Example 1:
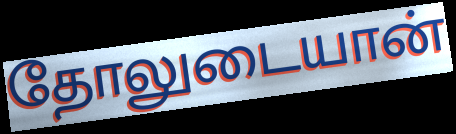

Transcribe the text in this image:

தோலுடையான்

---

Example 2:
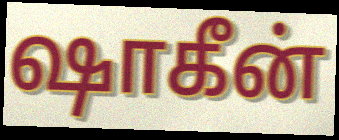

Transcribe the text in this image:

ஷாகீன்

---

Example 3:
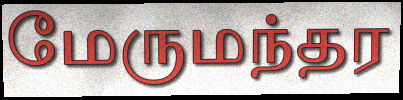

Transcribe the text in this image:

மேருமந்தர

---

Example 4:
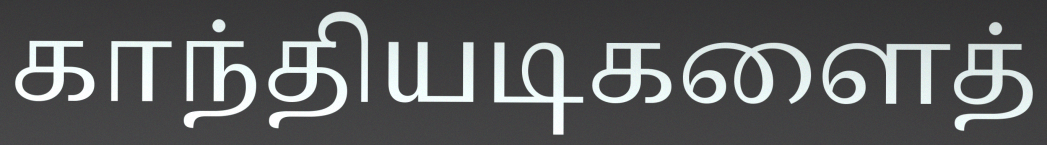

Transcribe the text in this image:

காந்தியடிகளைத்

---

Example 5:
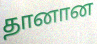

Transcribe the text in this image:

தானான